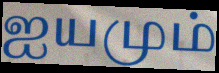
ஐயமும்